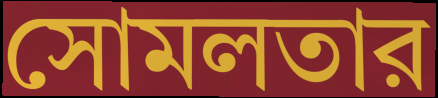
সোমলতার